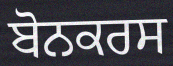
ਬੋਨਕਰਸ